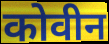
कोवीन